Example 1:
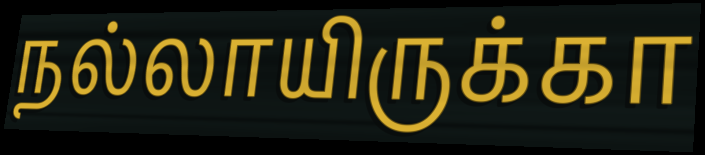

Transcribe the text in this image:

நல்லாயிருக்கா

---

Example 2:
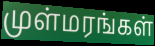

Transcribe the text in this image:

முள்மரங்கள்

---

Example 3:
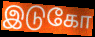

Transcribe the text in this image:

இடுகோ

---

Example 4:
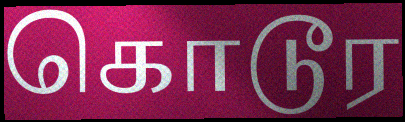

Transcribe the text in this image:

கொடூர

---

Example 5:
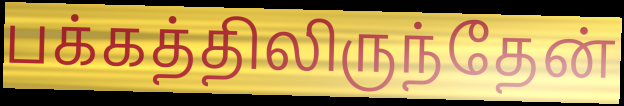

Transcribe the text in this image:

பக்கத்திலிருந்தேன்